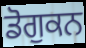
ਡੋਗੁਕਨ